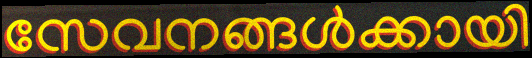
സേവനങ്ങൾക്കായി